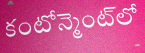
కంటోన్మెంట్‌లో